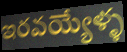
ఇరవయ్యేళ్ళ